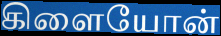
கிளையோன்